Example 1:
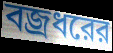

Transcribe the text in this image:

বজ্রধরের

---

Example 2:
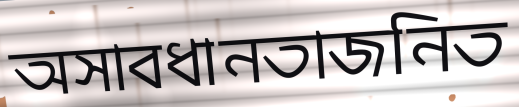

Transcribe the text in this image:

অসাবধানতাজনিত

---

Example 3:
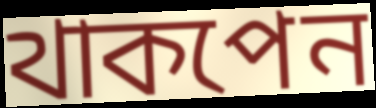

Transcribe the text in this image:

থাকপেন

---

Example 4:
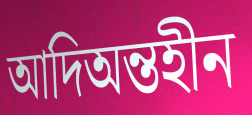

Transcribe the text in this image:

আদিঅন্তহীন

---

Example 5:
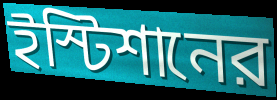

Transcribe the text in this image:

ইস্টিশানের